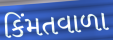
કિંમતવાળા